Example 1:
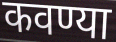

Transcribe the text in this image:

कवण्या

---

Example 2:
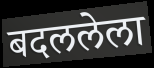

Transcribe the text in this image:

बदललेला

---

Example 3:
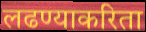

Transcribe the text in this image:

लढण्याकरिता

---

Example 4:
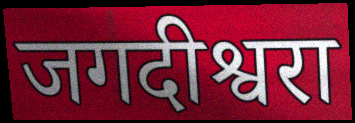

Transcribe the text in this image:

जगदीश्वरा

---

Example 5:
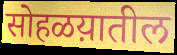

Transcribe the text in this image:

सोहळय़ातील